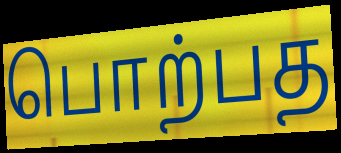
பொற்பத